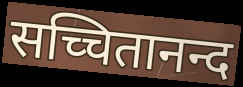
सच्चितानन्द